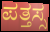
ಪತ್ತಸ್ಸ